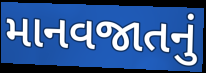
માનવજાતનું